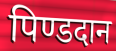
पिण्डदान